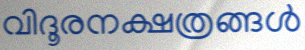
വിദൂരനക്ഷത്രങ്ങൾ